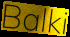
Balki